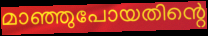
മാഞ്ഞുപോയതിന്റെ